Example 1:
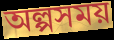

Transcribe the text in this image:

অল্পসময়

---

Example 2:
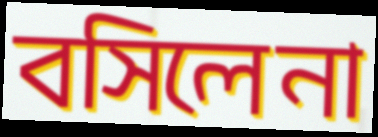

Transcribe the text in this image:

বসিলেনা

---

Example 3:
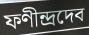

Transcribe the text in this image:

ফণীন্দ্রদেব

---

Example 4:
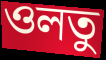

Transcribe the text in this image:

ওলতু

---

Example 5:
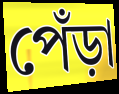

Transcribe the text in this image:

পেঁড়া